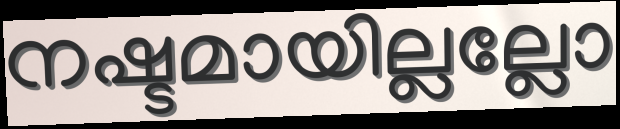
നഷ്ടമായില്ലല്ലോ